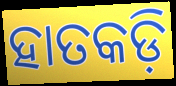
ହାତକଡ଼ି